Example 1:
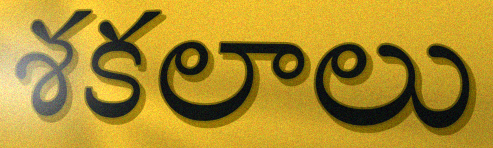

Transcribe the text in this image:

శకలాలు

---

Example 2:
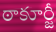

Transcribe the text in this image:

ఠాకూర్జీ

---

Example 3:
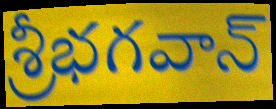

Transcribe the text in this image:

శ్రీభగవాన్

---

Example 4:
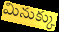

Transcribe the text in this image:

మినుక్కు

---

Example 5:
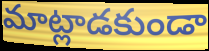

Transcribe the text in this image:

మాట్లాడకుండా